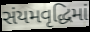
સંયમવૃદ્ધિમાં